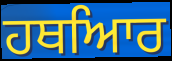
ਹਥਆਿਰ